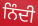
ਨਿੰਦੀ